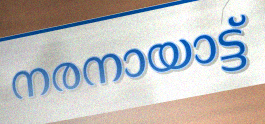
നരനായാട്ട്